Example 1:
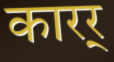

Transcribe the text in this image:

कारर्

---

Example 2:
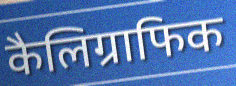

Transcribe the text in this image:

कैलिग्राफिक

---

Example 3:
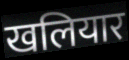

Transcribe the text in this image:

खलियार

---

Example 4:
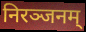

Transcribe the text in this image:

निरञ्जनम्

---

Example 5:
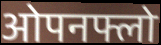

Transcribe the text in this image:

ओपनफ्लो